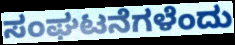
ಸಂಘಟನೆಗಳೆಂದು